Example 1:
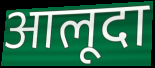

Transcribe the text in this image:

आलूदा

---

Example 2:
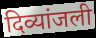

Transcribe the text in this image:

दिव्यांजली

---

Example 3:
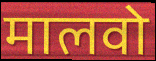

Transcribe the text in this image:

मालवो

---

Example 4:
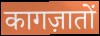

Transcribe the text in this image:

कागज़ातों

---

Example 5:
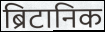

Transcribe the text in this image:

ब्रिटानिक